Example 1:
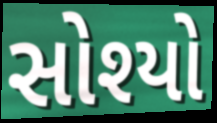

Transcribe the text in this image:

સોશ્યો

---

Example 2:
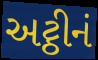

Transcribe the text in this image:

અટ્ઠીનં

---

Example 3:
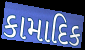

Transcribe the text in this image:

કામાદિક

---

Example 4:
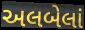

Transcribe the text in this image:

અલબેલાં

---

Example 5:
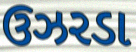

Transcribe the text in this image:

ઉઝરડા